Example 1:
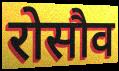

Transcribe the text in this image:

रोसौव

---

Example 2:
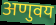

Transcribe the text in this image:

अणुवय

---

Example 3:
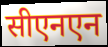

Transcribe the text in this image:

सीएनएन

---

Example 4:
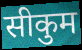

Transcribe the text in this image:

सीकुम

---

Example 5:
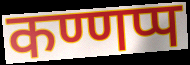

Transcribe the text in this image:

कण्णप्प